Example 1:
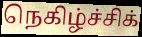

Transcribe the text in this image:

நெகிழ்ச்சிக்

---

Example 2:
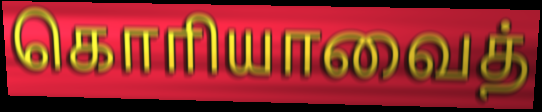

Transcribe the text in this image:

கொரியாவைத்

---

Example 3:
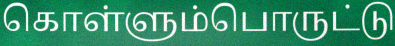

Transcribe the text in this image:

கொள்ளும்பொருட்டு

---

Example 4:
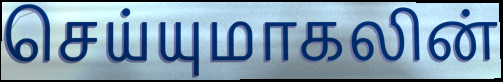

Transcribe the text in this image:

செய்யுமாகலின்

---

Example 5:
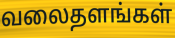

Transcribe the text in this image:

வலைதளங்கள்